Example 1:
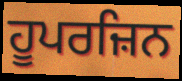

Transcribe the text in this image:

ਹੂਪਰਜ਼ਿਨ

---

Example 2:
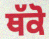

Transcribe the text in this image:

ਥੱਕੋ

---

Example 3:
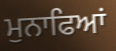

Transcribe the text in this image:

ਮੁਨਾਫਿਆਂ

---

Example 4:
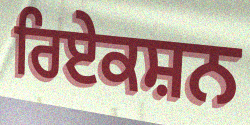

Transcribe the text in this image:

ਰਿਏਕਸ਼ਨ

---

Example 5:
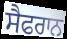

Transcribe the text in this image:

ਸੈਫਰਾਨ